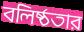
বলিষ্ঠতার